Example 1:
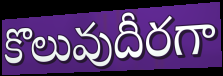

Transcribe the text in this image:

కొలువుదీరగా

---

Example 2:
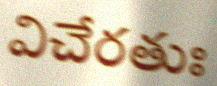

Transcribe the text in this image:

విచేరతుః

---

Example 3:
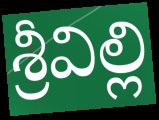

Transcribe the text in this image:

శ్రీవిల్లి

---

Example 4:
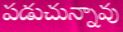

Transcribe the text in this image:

పడుచున్నావు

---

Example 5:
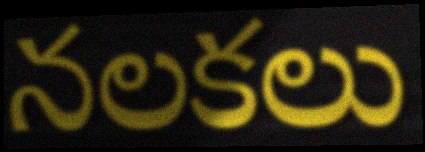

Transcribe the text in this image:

నలకలు